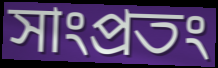
সাংপ্রতং